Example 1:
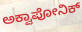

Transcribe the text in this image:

ಅಕ್ವಾಪೋನಿಕ್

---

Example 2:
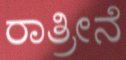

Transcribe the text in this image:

ರಾತ್ರೀನೆ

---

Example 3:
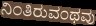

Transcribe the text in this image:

ನಿಂತಿರುವಂಥವು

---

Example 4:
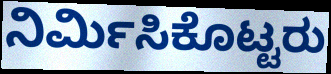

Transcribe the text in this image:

ನಿರ್ಮಿಸಿಕೊಟ್ಟರು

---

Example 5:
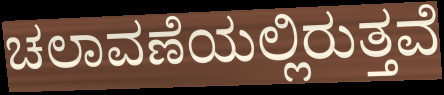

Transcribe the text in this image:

ಚಲಾವಣೆಯಲ್ಲಿರುತ್ತವೆ